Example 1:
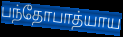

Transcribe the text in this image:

பந்தோபாத்யாய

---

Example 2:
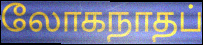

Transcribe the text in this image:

லோகநாதப்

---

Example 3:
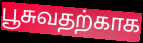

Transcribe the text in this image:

பூசுவதற்காக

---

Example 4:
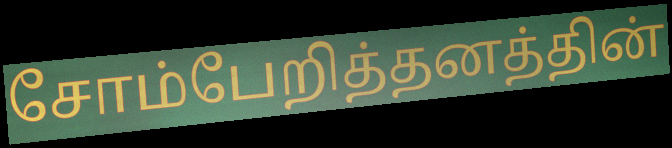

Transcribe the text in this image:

சோம்பேறித்தனத்தின்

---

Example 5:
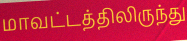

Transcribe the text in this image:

மாவட்டத்திலிருந்து